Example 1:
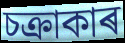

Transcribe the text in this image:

চক্ৰাকাৰ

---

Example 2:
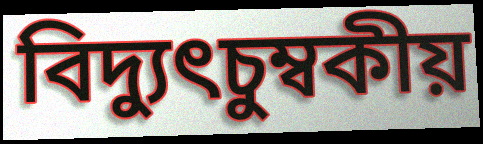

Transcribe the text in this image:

বিদ্যুৎচুম্বকীয়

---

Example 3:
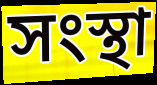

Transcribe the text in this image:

সংস্থা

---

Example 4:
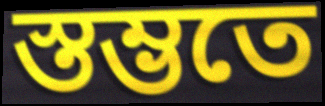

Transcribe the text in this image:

স্তম্ভতে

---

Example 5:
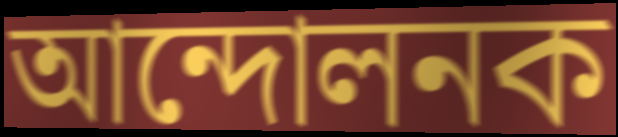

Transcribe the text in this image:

আন্দোলনক